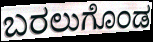
ಬರಲುಗೊಂಡ